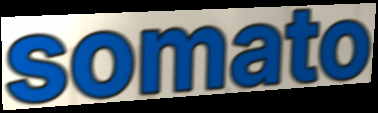
somato